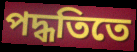
পদ্ধতিতে